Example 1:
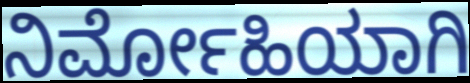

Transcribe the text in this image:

ನಿರ್ಮೋಹಿಯಾಗಿ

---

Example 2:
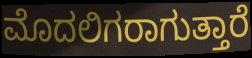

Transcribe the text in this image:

ಮೊದಲಿಗರಾಗುತ್ತಾರೆ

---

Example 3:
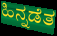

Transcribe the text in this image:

ಹಿನ್ನಡೆತ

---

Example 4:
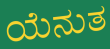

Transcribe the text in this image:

ಯೆನುತ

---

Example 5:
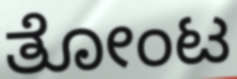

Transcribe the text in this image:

ತೋಂಟ